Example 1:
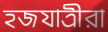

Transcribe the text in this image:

হজযাত্রীরা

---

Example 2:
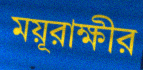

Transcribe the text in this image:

ময়ূরাক্ষীর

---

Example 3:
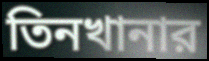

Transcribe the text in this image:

তিনখানার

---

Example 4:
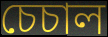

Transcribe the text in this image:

চেচাল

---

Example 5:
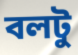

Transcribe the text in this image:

বলটু